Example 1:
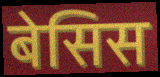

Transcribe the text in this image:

बेसिस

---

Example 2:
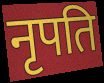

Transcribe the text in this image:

नृपति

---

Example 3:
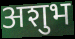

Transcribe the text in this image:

अशुभ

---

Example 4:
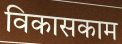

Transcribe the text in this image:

विकासकाम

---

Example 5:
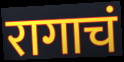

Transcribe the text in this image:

रागाचं